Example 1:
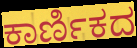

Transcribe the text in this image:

ಕಾರ್ಣಿಕದ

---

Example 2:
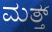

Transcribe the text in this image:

ಮತ್ತ್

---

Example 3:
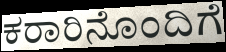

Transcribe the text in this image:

ಕರಾರಿನೊಂದಿಗೆ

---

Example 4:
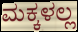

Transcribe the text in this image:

ಮಕ್ಕಳಲ್ಲ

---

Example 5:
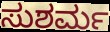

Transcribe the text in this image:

ಸುಶರ್ಮ